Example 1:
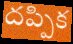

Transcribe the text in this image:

దప్పిక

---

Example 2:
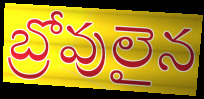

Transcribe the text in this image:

బ్రోవులైన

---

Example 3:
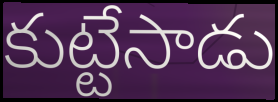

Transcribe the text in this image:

కుట్టేసాడు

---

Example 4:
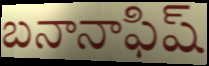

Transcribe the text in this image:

బనానాఫిష్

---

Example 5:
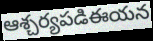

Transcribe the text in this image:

ఆశ్చర్యపడిఈయన